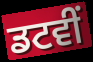
ਡਟਵੀਂ